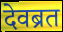
देवब्रत